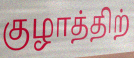
குழாத்திற்